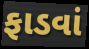
ફાડવાં